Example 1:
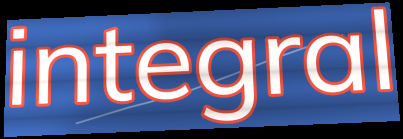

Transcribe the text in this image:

integral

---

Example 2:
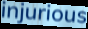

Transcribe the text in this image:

injurious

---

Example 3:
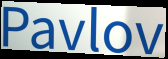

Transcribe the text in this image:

Pavlov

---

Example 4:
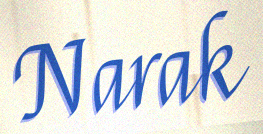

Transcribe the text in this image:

Narak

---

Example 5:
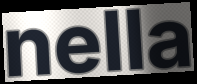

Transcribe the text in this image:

nella